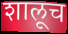
शालूच